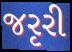
જરૃરી